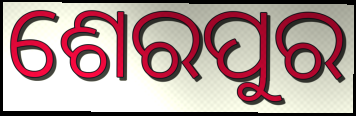
ଶେରପୁର